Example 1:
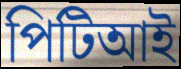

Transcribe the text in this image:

পিটিআই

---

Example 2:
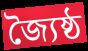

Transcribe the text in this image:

জ্যৈষ্ঠ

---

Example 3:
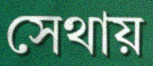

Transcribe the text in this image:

সেথায়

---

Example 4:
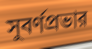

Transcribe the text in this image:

সুবর্ণপ্রভার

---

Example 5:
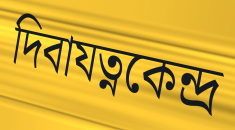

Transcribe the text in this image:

দিবাযত্নকেন্দ্র